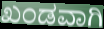
ಖಂಡವಾಗಿ